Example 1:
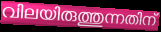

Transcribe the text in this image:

വിലയിരുത്തുന്നതിന്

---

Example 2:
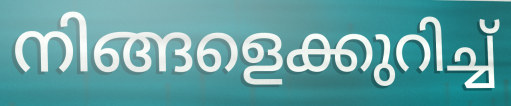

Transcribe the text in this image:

നിങ്ങളെക്കുറിച്ച്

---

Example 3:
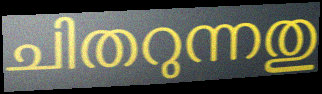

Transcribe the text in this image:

ചിതറുന്നതു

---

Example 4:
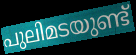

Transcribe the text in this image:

പുലിമടയുണ്ട്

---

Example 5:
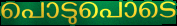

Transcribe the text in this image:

പൊടുപൊടെ